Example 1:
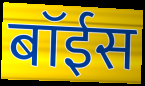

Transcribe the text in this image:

बॉईस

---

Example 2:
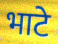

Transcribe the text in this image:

भाटे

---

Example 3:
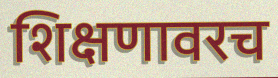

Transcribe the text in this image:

शिक्षणावरच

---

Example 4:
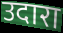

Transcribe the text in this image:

उदारा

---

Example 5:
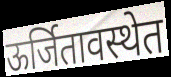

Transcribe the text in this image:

ऊर्जितावस्थेत